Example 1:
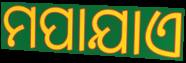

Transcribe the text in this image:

ମପାଯାଏ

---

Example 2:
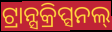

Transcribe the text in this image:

ଟ୍ରାନ୍ସକ୍ରିପ୍ସନଲ୍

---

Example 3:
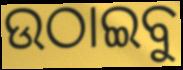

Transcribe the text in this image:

ଉଠାଇବୁ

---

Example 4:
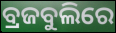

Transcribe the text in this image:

ବ୍ରଜବୁଲିରେ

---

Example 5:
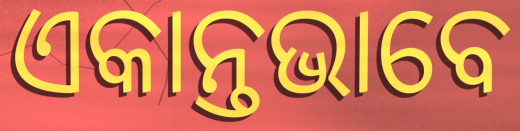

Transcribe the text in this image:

ଏକାନ୍ତଭାବେ